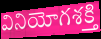
వినియోగశక్తి